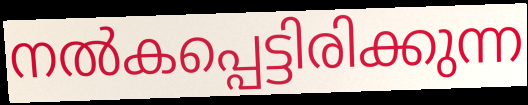
നൽകപ്പെട്ടിരിക്കുന്ന